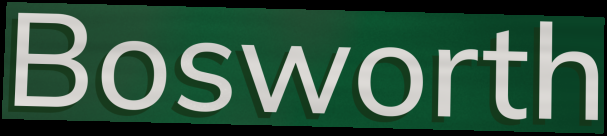
Bosworth